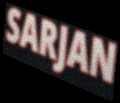
SARJAN